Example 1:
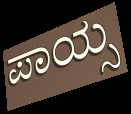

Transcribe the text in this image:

ಪಾಯ್ಸ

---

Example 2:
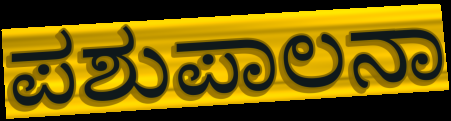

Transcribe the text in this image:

ಪಶುಪಾಲನಾ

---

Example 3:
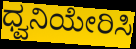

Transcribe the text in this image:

ಧ್ವನಿಯೇರಿಸಿ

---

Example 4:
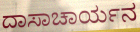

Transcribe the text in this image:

ದಾಸಾಚಾರ್ಯನ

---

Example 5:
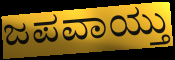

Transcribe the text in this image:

ಜಪವಾಯ್ತು